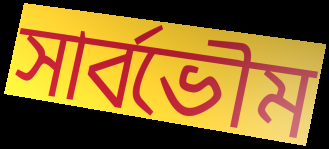
সাৰ্বভৌম